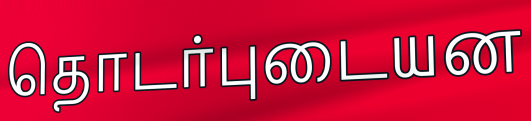
தொடர்புடையன